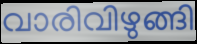
വാരിവിഴുങ്ങി